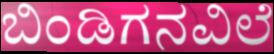
ಬಿಂಡಿಗನವಿಲೆ